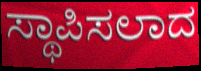
ಸ್ಥಾಪಿಸಲಾದ